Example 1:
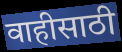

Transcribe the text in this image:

वाहीसाठी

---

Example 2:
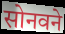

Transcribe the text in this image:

सोनवने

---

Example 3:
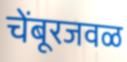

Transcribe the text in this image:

चेंबूरजवळ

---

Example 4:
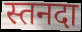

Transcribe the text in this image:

स्तनदा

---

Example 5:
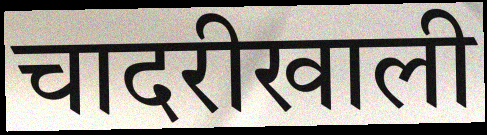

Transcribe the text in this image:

चादरीखाली